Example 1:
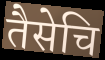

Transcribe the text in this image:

तैसेचि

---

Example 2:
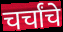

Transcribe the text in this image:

चर्चांचे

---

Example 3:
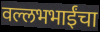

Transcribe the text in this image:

वल्लभभाईंचा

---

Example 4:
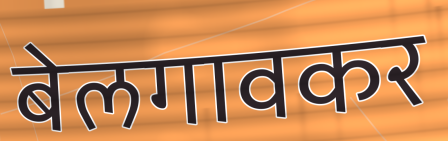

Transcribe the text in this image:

बेलगावकर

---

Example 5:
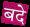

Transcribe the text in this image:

बदे